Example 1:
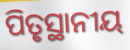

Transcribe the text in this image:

ପିତୃସ୍ଥାନୀୟ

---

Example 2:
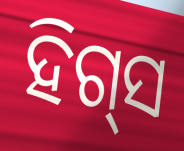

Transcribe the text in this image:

ହିଗ୍‌ସ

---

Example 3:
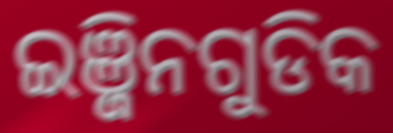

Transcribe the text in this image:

ଇଞ୍ଜିନଗୁଡିକ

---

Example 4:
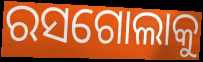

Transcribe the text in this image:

ରସଗୋଲାକୁ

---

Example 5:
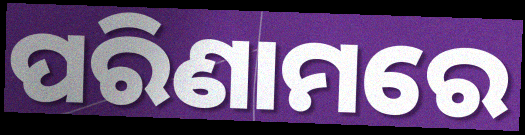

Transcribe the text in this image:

ପରିଣାମରେ